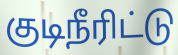
குடிநீரிட்டு